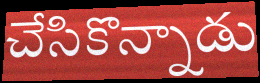
చేసికొన్నాడు